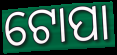
ଟୋପା